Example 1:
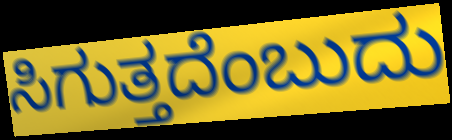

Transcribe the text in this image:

ಸಿಗುತ್ತದೆಂಬುದು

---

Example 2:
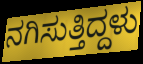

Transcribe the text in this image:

ನಗಿಸುತ್ತಿದ್ದಳು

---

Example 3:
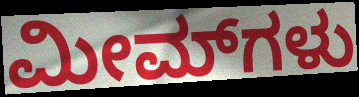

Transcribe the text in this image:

ಮೀಮ್‌ಗಳು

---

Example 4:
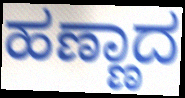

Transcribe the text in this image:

ಹಣ್ಣಾದ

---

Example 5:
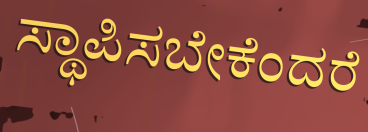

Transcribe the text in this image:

ಸ್ಥಾಪಿಸಬೇಕೆಂದರೆ